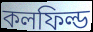
কলফিল্ড